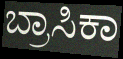
ಬ್ರಾಸಿಕಾ